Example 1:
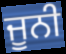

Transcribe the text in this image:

ਜੂਨੀ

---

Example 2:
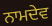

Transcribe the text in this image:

ਨਾਮਦੇਵ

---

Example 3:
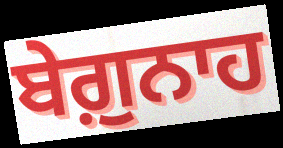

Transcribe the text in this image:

ਬੇਗ਼ੁਨਾਹ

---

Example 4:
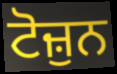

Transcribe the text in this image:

ਟੋਜ਼ੁਨ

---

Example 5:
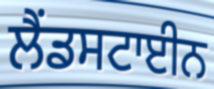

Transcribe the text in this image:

ਲੈਂਡਸਟਾਈਨ